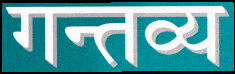
गन्तव्य